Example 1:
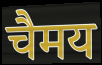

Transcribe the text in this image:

चैमय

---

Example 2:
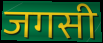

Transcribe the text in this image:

जगसी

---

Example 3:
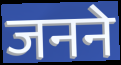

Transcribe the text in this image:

जनने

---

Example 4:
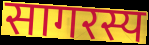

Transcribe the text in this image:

सागरस्य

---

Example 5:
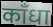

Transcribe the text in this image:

काँधा